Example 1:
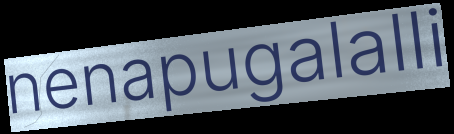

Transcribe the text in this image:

nenapugalalli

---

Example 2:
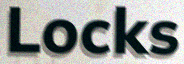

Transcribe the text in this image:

Locks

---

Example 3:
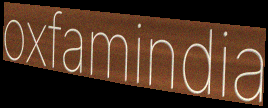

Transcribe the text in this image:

oxfamindia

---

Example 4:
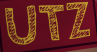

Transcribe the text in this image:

UTZ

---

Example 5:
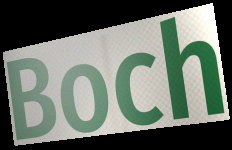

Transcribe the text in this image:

Boch